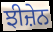
ਝੀਜ਼ੇਨ